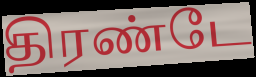
திரண்டே